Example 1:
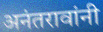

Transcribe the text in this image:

अनंतरावांनी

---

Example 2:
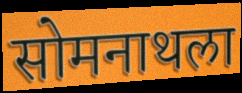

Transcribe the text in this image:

सोमनाथला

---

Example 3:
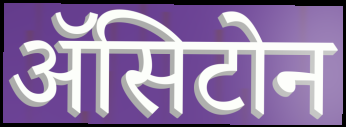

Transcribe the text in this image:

ॲसिटोन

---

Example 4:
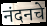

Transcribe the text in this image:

नंदनचे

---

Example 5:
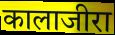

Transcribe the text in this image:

कालाजीरा